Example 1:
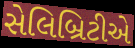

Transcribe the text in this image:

સેલિબ્રિટીએ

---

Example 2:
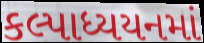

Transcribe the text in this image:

કલ્પાધ્યયનમાં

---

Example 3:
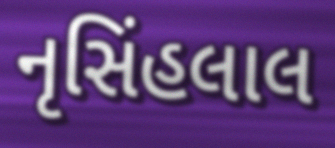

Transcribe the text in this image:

નૃસિંહલાલ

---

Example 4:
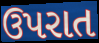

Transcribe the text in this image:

ઉપરાત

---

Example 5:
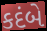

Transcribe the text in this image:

કદંબે